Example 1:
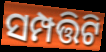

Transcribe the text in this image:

ସମ୍ପତ୍ତିଟି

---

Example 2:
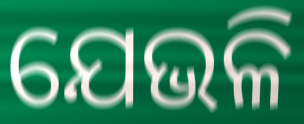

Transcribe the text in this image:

ଯେଭଳି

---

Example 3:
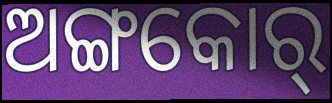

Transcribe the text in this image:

ଅଙ୍ଗକୋର୍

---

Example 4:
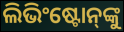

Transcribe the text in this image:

ଲିଭିଂଷ୍ଟୋନ୍‌ଙ୍କୁ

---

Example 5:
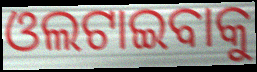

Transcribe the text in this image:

ଓଲଟାଇବାକୁ